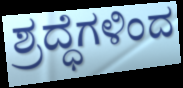
ಶ್ರದ್ಧೆಗಳಿಂದ